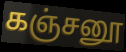
கஞ்சனூ